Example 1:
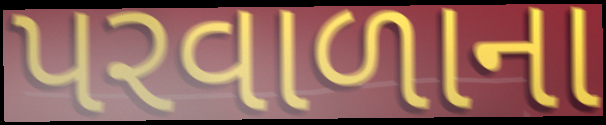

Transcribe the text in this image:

પરવાળાના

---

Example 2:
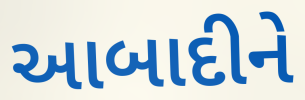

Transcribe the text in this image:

આબાદીને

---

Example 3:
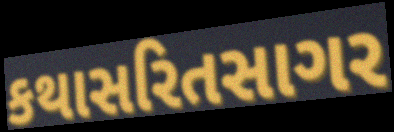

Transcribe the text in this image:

કથાસરિતસાગર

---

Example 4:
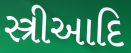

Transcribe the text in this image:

સ્ત્રીઆદિ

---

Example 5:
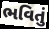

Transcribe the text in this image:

ભવિતું